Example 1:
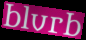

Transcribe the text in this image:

blurb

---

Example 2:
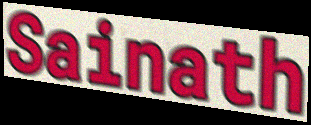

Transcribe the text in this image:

Sainath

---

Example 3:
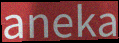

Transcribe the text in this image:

aneka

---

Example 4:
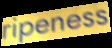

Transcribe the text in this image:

ripeness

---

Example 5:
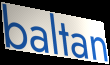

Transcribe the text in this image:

baltan